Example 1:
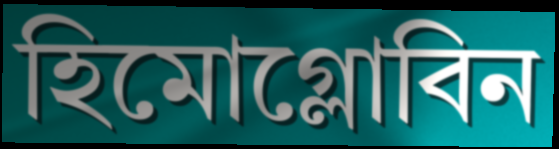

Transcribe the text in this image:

হিমোগ্লোবিন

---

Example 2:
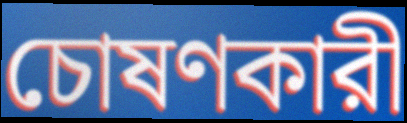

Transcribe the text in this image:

চোষণকারী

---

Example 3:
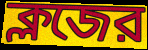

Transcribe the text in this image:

ক্লজের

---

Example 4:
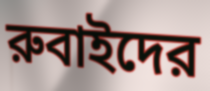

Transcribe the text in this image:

রুবাইদের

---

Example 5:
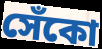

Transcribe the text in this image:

সেঁকো